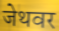
जेथवर